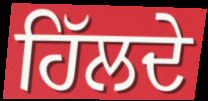
ਹਿੱਲਦੇ